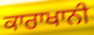
ਕਾਰਾਖਾਨੀ